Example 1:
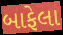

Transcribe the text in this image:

બાફેલા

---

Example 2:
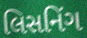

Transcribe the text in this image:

લિસનિંગ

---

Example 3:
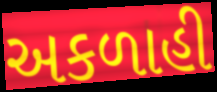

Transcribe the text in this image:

અકળાહી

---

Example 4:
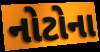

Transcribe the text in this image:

નોટોના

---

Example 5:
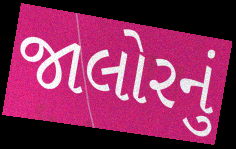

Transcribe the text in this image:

જાલોરનું